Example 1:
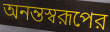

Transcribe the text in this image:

অনন্তস্বরূপের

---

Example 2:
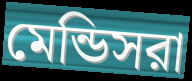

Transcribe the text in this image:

মেন্ডিসরা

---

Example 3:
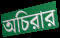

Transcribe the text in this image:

অচিরার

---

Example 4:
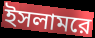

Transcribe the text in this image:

ইসলামরে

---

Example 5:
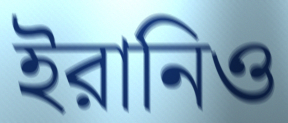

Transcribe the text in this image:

ইরানিও